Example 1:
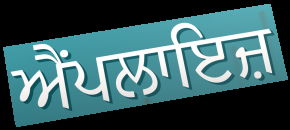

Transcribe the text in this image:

ਐਂਪਲਾਇਜ਼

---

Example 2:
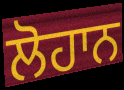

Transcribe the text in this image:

ਲੋਹਾਨ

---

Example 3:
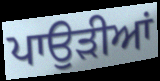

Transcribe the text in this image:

ਪਾਉੜੀਆਂ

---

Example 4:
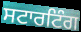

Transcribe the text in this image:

ਸਟਾਰਟਿੰਗ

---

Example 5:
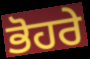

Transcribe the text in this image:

ਭੋਹਰੇ